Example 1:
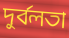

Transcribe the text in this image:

দুৰ্বলতা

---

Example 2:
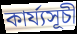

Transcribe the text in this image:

কাৰ্য্যসূচী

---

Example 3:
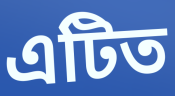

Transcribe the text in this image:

এটিত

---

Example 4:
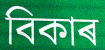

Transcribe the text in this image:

বিকাৰ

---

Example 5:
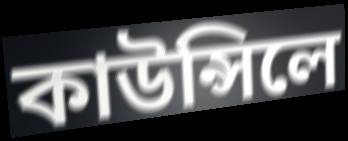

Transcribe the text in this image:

কাউন্সিলে